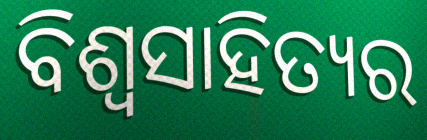
ବିଶ୍ୱସାହିତ୍ୟର